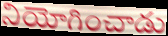
నియోగించాడు